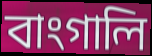
বাংগালি